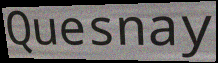
Quesnay